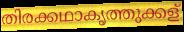
തിരക്കഥാകൃത്തുക്കള്